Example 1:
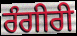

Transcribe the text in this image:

ਰੰਗੀਰੀ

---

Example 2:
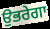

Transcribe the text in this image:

ਉਭਰੇਗਾ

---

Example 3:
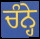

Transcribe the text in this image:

ਚੰਨ੍ਹੇ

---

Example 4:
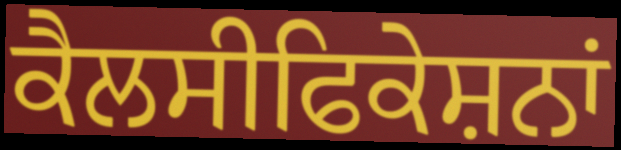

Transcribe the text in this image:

ਕੈਲਸੀਫਿਕੇਸ਼ਨਾਂ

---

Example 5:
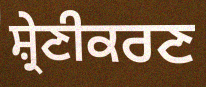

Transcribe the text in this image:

ਸ਼੍ਰੇਣੀਕਰਣ